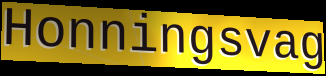
Honningsvag